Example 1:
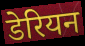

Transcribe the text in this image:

डेरियन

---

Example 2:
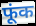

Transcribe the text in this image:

फूंक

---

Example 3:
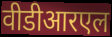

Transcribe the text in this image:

वीडीआरएल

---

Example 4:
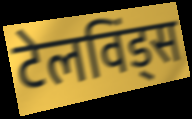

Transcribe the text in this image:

टेलविंड्स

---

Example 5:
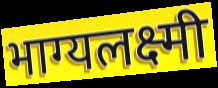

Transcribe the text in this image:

भाग्यलक्ष्मी